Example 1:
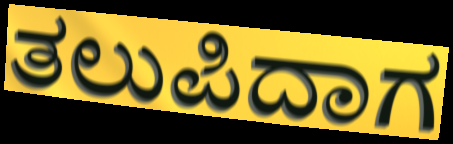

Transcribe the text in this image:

ತಲುಪಿದಾಗ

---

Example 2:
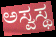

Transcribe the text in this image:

ಅಸ್ವಸ್ಥ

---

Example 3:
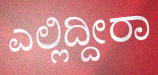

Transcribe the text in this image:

ಎಲ್ಲಿದ್ದೀರಾ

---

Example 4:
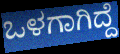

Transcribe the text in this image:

ಒಳಗಾಗಿದ್ದೆ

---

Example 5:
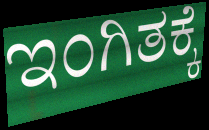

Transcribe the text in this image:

ಇಂಗಿತಕ್ಕೆ